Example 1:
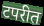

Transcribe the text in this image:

टपरीत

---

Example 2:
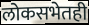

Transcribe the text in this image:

लोकसभेतही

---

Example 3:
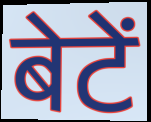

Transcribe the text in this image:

बेटें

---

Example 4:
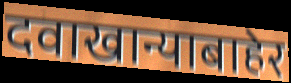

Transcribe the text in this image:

दवाखान्याबाहेर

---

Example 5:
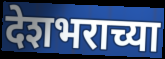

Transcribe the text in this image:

देशभराच्या